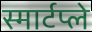
स्मार्टप्ले